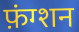
फ़ंग्शन